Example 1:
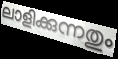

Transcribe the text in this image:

ലാളിക്കുന്നതും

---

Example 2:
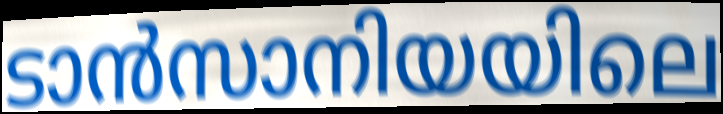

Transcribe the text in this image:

ടാൻസാനിയയിലെ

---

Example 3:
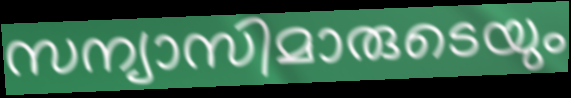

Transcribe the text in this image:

സന്യാസിമാരുടെയും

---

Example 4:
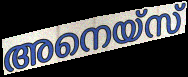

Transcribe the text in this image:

അനെയ്സ്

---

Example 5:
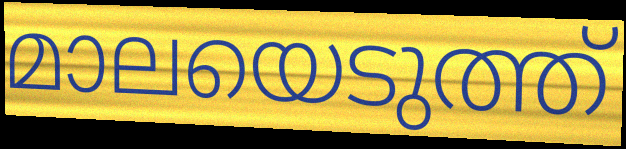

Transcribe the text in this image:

മാലയെടുത്ത്